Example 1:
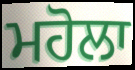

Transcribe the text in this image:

ਮਹੋਲਾ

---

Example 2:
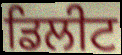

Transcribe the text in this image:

ਡਿਲੀਟ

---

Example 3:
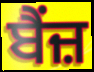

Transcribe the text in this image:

ਬੈਂਜ਼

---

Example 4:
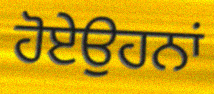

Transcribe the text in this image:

ਹੋਏਉਹਨਾਂ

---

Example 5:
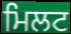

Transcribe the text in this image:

ਮਿਲਟ